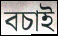
বচাই